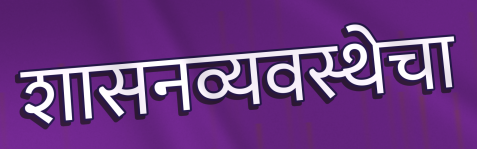
शासनव्यवस्थेचा